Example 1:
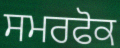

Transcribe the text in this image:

ਸਮਰਫੋਕ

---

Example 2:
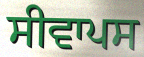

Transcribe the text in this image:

ਸੀਵਾਪਸ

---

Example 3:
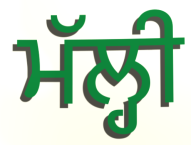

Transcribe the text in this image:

ਮੱਲ੍ਹੀ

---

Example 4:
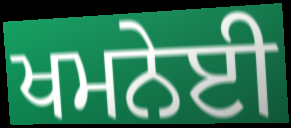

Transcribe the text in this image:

ਖਮਨੇਈ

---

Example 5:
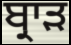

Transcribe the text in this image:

ਬ੍ਰਾੜ